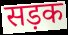
सड़क